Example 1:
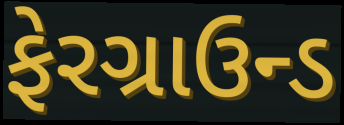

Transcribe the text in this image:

ફેરગ્રાઉન્ડ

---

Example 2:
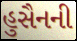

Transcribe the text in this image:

હુસૈનની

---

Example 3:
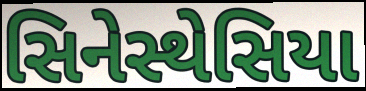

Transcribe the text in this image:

સિનેસ્થેસિયા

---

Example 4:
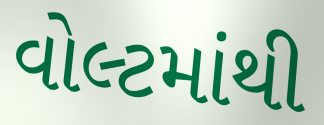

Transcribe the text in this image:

વોલ્ટમાંથી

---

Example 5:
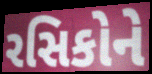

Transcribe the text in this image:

રસિકોને